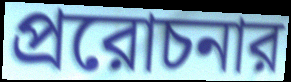
প্ররোচনার